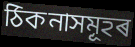
ঠিকনাসমূহৰ